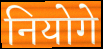
नियोगे